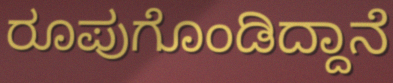
ರೂಪುಗೊಂಡಿದ್ದಾನೆ